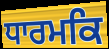
ਧਾਰਮਕਿ